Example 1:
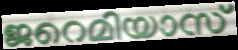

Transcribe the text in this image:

ജറെമിയാസ്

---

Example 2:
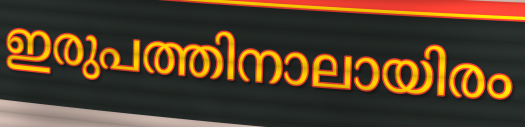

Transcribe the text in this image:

ഇരുപത്തിനാലായിരം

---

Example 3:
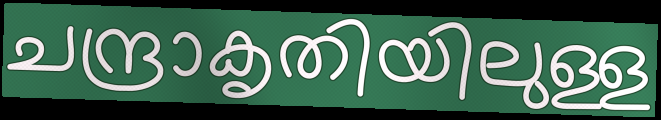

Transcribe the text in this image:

ചന്ദ്രാകൃതിയിലുള്ള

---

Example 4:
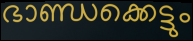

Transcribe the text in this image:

ഭാണ്ഡക്കെട്ടും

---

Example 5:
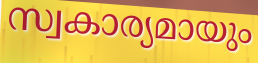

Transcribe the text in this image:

സ്വകാര്യമായും